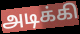
அடிக்கி